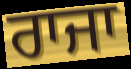
ਰਾਜਾ